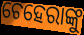
ଚେହେରାଙ୍କୁ